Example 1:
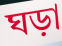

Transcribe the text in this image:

ঘড়া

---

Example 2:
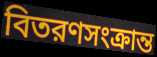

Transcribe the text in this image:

বিতরণসংক্রান্ত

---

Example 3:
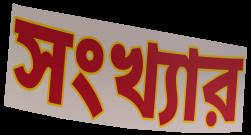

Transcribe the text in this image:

সংখ্যার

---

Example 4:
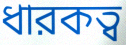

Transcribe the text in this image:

ধারকত্ব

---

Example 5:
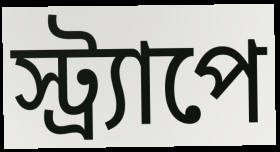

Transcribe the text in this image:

স্ট্র্যাপে